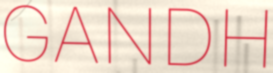
GANDH